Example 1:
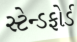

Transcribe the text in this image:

સ્ટેન્ડફોર્ડ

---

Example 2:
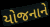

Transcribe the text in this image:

યોજનાને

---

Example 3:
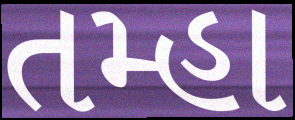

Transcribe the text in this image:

તમ્હા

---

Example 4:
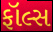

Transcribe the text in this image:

ફૉલ્સ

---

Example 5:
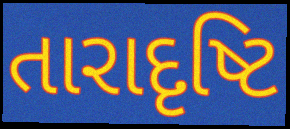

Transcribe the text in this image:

તારાદૃષ્ટિ